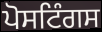
ਪੋਸਟਿੰਗਸ